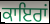
ਕਾਇਰਾਂ